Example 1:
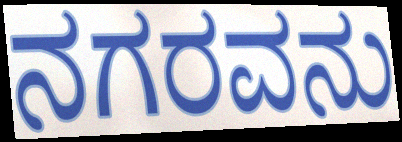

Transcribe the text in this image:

ನಗರವನು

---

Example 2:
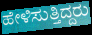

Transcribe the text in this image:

ಹೇಳಿಸುತ್ತಿದ್ದರು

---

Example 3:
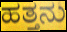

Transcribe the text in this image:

ಹತ್ತನು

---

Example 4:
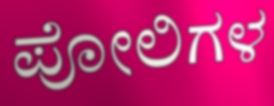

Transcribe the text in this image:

ಪೋಲಿಗಳ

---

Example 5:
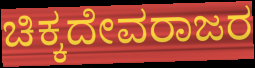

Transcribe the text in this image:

ಚಿಕ್ಕದೇವರಾಜರ